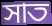
সাত